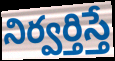
నిర్వర్తిస్తే